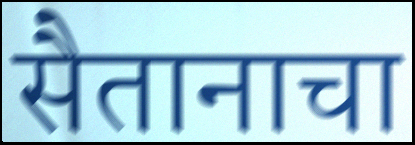
सैतानाचा